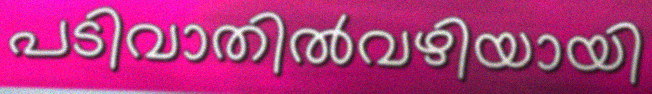
പടിവാതിൽവഴിയായി